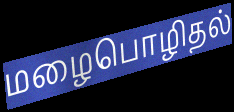
மழைபொழிதல்